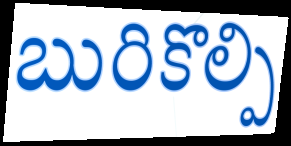
బురికొల్పి